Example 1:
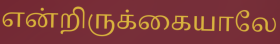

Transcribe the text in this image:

என்றிருக்கையாலே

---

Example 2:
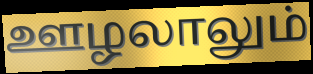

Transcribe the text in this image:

ஊழலாலும்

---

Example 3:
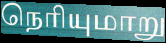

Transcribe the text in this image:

நெரியுமாறு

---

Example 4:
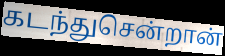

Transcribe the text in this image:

கடந்துசென்றான்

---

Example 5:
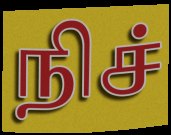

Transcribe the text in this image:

நிச்